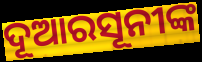
ଦୂଆରସୂନୀଙ୍କ